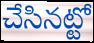
చేసినట్టో